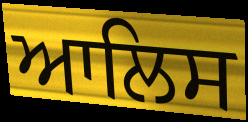
ਆਲਿਸ